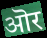
ऒर